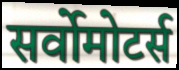
सर्वोमोटर्स